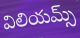
విలియమ్స్